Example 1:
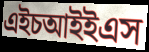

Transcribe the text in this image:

এইচআইইএস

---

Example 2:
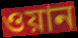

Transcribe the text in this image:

ওয়ান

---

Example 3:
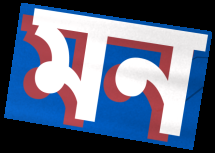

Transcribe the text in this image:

মন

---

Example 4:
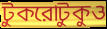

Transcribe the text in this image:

টুকরোটুকুও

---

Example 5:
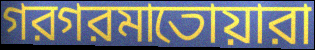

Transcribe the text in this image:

গরগরমাতোয়ারা